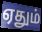
ஏதும்